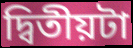
দ্বিতীয়টা